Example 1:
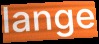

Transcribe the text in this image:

lange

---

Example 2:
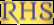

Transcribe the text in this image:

RHS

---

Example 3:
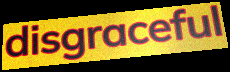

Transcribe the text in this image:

disgraceful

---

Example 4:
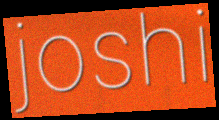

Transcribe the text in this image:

joshi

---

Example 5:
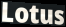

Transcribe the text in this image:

Lotus